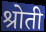
श्रोती